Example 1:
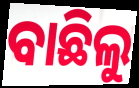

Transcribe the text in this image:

ବାଛିଲୁ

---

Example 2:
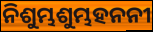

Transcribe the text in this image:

ନିଶୁମ୍ଭଶୁମ୍ଭହନନୀ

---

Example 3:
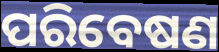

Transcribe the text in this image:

ପରିବେଷଣ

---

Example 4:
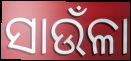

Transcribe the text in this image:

ସାଉଁଳା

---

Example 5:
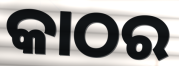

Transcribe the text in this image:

କାଠର